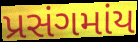
પ્રસંગમાંય